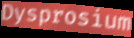
Dysprosium